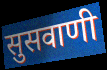
सुसवाणी